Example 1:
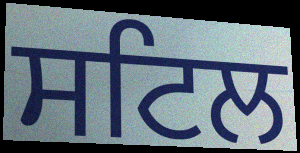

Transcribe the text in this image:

ਸਟਿਲ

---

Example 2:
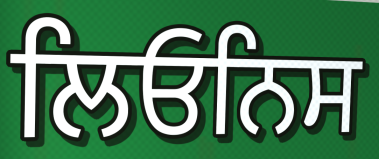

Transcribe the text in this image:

ਲਿਓਨਿਸ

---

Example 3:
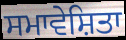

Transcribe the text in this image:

ਸਮਾਵੇਸ਼ਿਤਾ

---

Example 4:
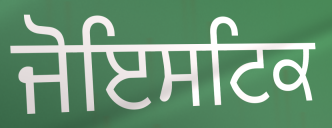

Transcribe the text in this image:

ਜੋਇਸਟਿਕ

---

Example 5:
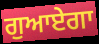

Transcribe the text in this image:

ਗੁਆਏਗਾ